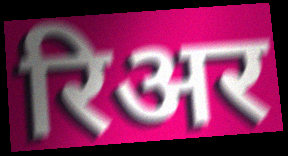
रिअर